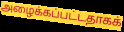
அழைக்கப்பட்டதாகக்